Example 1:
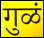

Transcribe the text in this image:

गुळं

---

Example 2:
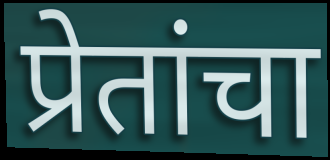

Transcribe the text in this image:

प्रेतांचा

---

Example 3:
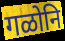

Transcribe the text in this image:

गळोनि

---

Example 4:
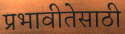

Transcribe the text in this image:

प्रभावीतेसाठी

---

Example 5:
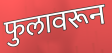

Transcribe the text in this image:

फुलावरून